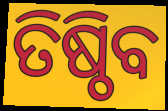
ତିଷ୍ଠିବ